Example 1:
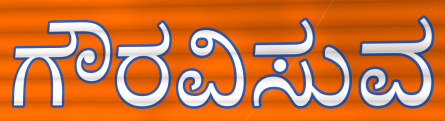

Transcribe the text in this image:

ಗೌರವಿಸುವ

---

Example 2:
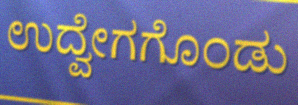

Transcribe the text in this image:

ಉದ್ವೇಗಗೊಂಡು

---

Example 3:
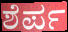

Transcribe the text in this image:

ಶೆರ್ಪ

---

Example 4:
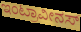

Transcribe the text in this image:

ಇಂಟ್ರಾವೀನಸ್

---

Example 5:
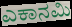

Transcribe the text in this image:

ಎಕಾನಮಿ